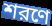
শরণে